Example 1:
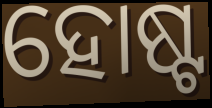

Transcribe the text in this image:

ହୋଷ୍ଟ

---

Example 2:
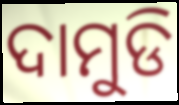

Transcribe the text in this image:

ଦାମୁଡି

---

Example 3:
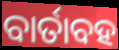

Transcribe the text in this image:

ବାର୍ତାବହ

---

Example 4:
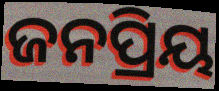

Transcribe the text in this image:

ଜନପ୍ରିୟ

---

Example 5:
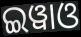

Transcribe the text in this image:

ଇୱାଓ